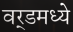
वर्डमध्ये